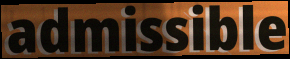
admissible